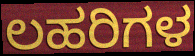
ಲಹರಿಗಳ